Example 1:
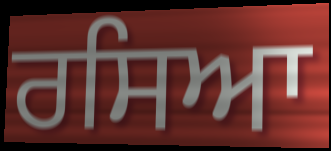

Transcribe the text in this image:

ਰਸਿਆ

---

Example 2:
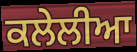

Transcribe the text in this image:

ਕਲੇਲੀਆ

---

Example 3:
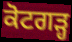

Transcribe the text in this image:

ਕੋਟਗੜ੍ਹ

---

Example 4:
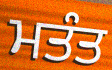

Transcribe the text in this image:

ਮਤੰਤ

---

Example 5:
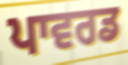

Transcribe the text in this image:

ਪਾਵਰਡ